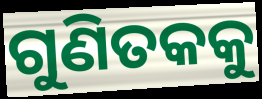
ଗୁଣିତକକୁ